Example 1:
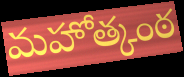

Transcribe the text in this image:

మహోత్కంఠ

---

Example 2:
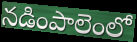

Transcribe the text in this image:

నడింపాలెంలో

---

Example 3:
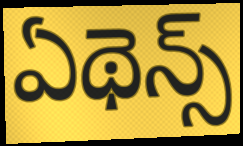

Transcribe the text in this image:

ఏథెన్స్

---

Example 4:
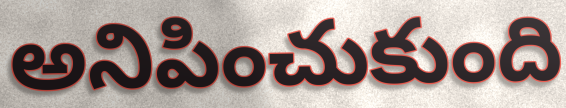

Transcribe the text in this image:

అనిపించుకుంది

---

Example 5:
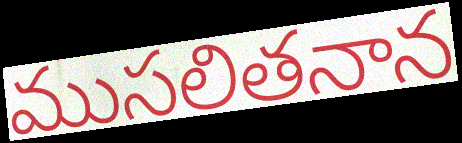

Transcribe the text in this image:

ముసలితనాన